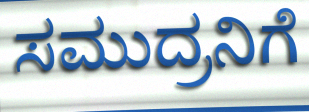
ಸಮುದ್ರನಿಗೆ